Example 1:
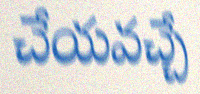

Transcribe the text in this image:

చేయవచ్చే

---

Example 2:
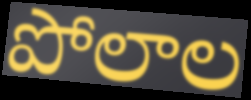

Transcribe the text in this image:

పోలాల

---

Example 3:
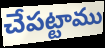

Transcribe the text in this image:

చేపట్టాము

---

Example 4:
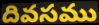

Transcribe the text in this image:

దివసము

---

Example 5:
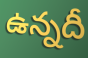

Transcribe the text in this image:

ఉన్నదీ